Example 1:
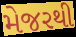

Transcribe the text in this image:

મેજરથી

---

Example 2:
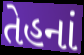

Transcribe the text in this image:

તેહનાં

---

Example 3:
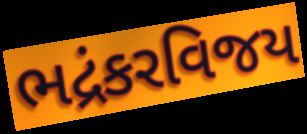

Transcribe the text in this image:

ભદ્રંકરવિજય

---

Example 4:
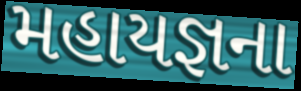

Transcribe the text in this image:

મહાયજ્ઞના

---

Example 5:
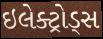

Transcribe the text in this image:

ઇલેક્ટ્રોડ્સ